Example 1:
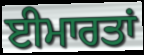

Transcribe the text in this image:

ਈਮਾਰਤਾਂ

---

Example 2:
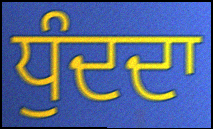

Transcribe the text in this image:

ਧੁੰਦਦਾ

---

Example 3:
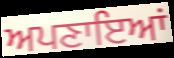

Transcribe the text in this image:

ਅਪਣਾਇਆਂ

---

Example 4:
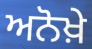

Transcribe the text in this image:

ਅਨੋਖ਼ੇ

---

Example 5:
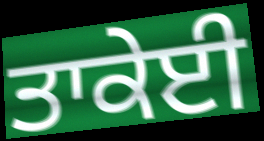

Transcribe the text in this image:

ਤਾਕੇਈ